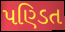
પણ્ડિત